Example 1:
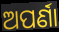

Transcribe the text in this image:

ଅପର୍ଣା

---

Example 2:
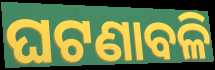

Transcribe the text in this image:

ଘଟଣାବଳି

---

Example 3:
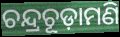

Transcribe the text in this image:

ଚନ୍ଦ୍ରଚୂଡ଼ାମଣି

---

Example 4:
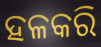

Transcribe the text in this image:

ହଳକରି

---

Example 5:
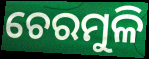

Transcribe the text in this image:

ଚେରମୁଳି